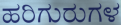
ಹರಿಗುರುಗಳ